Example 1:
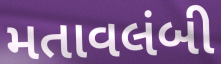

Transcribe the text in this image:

મતાવલંબી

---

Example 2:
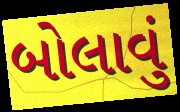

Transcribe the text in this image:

બોલાવું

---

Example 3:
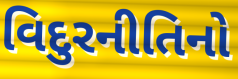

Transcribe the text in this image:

વિદુરનીતિનો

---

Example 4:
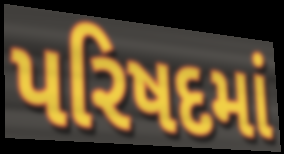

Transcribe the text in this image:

પરિષદમાં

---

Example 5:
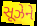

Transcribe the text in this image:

સૂઝેને